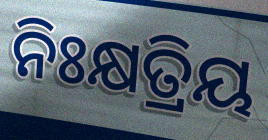
ନିଃକ୍ଷତ୍ରିୟ